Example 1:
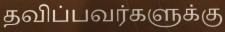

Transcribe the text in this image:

தவிப்பவர்களுக்கு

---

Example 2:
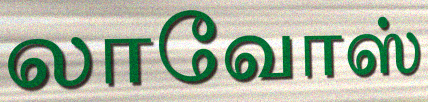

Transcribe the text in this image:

லாவோஸ்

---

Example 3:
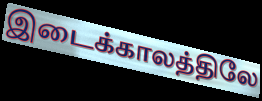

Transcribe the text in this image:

இடைக்காலத்திலே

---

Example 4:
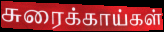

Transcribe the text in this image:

சுரைக்காய்கள்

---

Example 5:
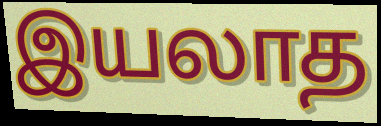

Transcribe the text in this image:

இயலாத